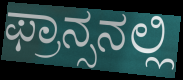
ಫ್ರಾನ್ಸನಲ್ಲಿ